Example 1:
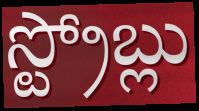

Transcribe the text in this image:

స్ట్రోబ్లు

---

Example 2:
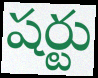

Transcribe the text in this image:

షర్టు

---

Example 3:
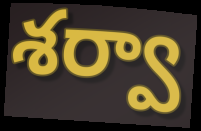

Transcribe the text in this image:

శర్వా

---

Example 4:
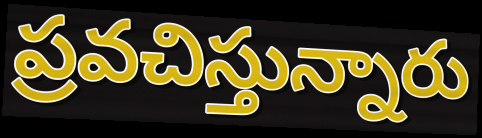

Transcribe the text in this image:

ప్రవచిస్తున్నారు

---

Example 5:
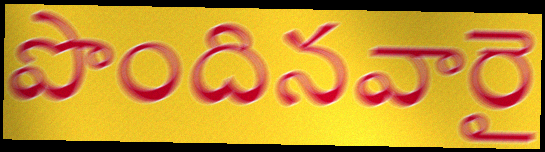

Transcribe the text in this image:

పొందినవారై